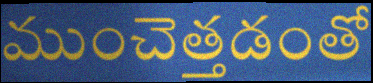
ముంచెత్తడంతో